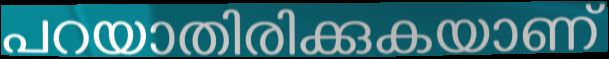
പറയാതിരിക്കുകയാണ്